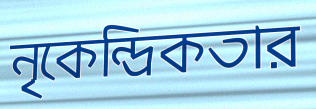
নৃকেন্দ্রিকতার